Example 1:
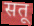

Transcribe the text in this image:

सतू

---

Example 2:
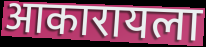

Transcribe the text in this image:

आकारायला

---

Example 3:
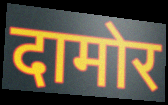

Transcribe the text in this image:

दामोर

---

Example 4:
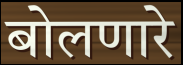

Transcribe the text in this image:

बोलणारे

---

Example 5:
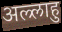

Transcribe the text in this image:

अल्लाहु